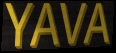
YAVA